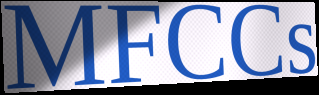
MFCCs